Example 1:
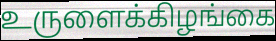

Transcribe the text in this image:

உருளைக்கிழங்கை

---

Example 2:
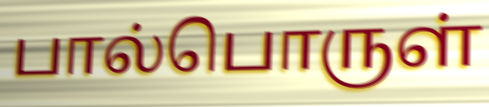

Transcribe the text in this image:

பால்பொருள்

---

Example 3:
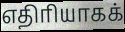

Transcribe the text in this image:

எதிரியாகக்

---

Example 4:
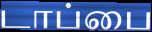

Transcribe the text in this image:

டாப்பை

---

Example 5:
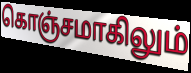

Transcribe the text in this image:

கொஞ்சமாகிலும்